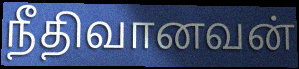
நீதிவானவன்